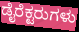
ಡೈರೆಕ್ಟರುಗಳು